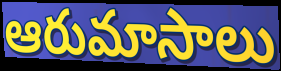
ఆరుమాసాలు